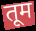
तूम